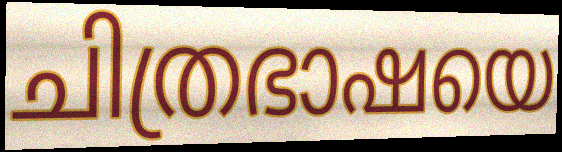
ചിത്രഭാഷയെ